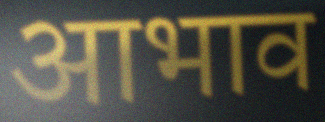
आभाव